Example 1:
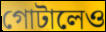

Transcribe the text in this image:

গোটালেও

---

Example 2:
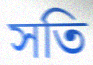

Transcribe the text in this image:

সতি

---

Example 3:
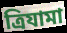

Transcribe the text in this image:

ত্রিযামা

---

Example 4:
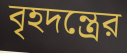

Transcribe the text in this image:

বৃহদন্ত্রের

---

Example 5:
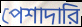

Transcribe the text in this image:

পেশাদারি